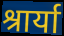
श्रार्या